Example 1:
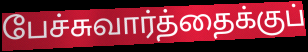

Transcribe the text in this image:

பேச்சுவார்த்தைக்குப்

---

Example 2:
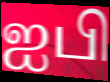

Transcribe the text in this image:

ஐபி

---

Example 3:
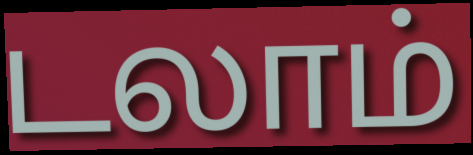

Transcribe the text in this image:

டலாம்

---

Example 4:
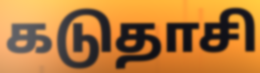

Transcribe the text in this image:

கடுதாசி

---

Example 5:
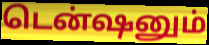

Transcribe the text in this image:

டென்ஷனும்